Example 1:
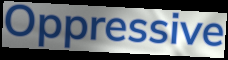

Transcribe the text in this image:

Oppressive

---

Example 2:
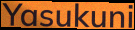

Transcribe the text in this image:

Yasukuni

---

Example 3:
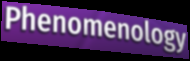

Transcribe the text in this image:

Phenomenology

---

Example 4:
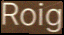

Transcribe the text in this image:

Roig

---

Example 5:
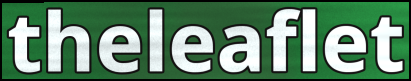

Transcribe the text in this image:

theleaflet